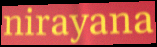
nirayana